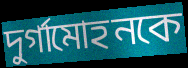
দুর্গামোহনকে